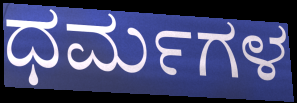
ಧರ್ಮಗಳ